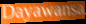
Dayawansa